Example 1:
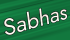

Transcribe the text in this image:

Sabhas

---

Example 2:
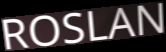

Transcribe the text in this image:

ROSLAN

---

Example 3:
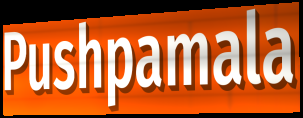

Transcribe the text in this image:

Pushpamala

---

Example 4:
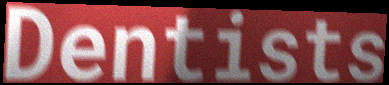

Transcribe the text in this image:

Dentists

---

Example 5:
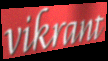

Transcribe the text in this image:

vikrant